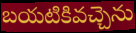
బయటికివచ్చెను